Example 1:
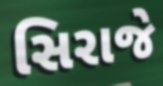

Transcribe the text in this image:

સિરાજે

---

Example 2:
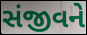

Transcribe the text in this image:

સંજીવને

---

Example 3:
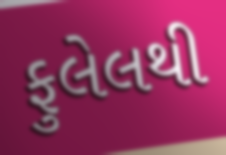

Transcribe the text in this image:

ફુલેલથી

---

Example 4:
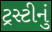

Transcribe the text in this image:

ટ્રસ્ટીનું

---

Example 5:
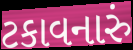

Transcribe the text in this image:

ટકાવનારું